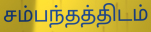
சம்பந்தத்திடம்